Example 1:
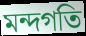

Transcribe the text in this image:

মন্দগতি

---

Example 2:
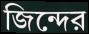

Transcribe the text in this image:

জিন্দের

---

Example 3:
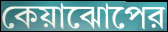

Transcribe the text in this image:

কেয়াঝোপের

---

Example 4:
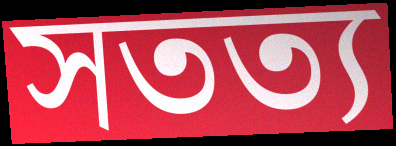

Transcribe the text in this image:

সতত্য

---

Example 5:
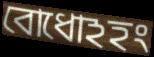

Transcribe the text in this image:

বোধোঽহং